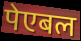
पेएबल